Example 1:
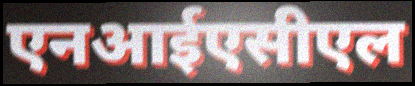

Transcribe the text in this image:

एनआईएसीएल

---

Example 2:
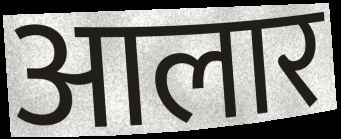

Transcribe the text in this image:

आलार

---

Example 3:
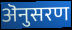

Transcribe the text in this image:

ऄनुसरण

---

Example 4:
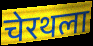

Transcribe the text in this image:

चेरथला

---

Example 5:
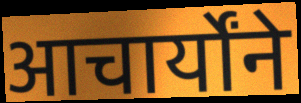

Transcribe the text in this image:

आचार्योंने